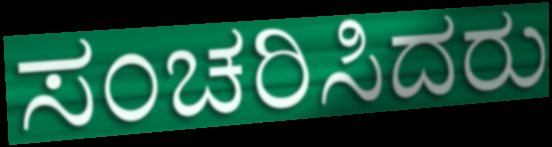
ಸಂಚರಿಸಿದರು